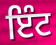
ਇੰਟ